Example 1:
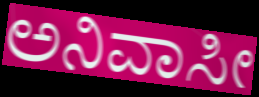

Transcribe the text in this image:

ಅನಿವಾಸೀ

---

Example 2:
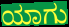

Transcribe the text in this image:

ಯಾಗು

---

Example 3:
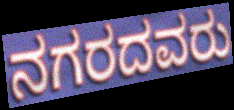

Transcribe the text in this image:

ನಗರದವರು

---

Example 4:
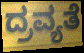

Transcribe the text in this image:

ದ್ರವ್ಯತೆ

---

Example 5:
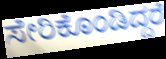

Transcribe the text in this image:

ಸೇರಿಕೊಂಡಿದ್ದರೆ